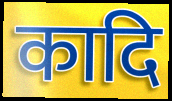
कादि